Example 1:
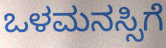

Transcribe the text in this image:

ಒಳಮನಸ್ಸಿಗೆ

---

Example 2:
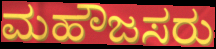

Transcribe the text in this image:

ಮಹೌಜಸರು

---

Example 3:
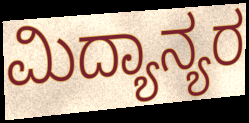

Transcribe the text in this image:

ಮಿದ್ಯಾನ್ಯರ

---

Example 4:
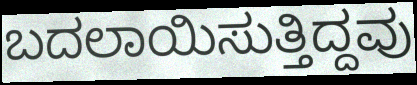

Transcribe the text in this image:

ಬದಲಾಯಿಸುತ್ತಿದ್ದವು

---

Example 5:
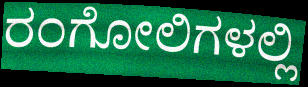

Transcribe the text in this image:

ರಂಗೋಲಿಗಳಲ್ಲಿ